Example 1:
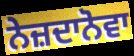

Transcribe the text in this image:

ਨੇਜ਼ਦਾਨੋਵਾ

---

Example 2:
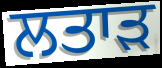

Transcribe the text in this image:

ਲਤਾੜ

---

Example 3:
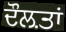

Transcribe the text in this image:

ਦੌਲ਼ਤਾਂ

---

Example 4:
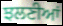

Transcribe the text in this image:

ਝਲਣੀਆਂ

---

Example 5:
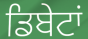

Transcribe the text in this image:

ਡਿਬੇਟਾਂ